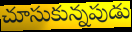
చూసుకున్నపుడు